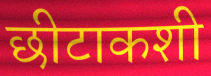
छीटाकशी